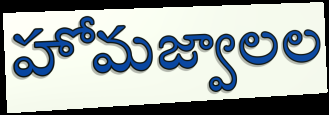
హోమజ్వాలల